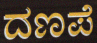
ದಣಪೆ